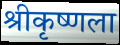
श्रीकृष्णला